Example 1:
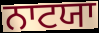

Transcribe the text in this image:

ਨਾਟਯਾ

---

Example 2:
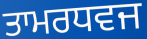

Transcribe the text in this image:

ਤਾਮਰਧਵਜ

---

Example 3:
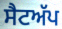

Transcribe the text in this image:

ਸੈਟਅੱਪ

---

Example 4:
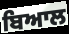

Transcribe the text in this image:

ਬਿਆਲ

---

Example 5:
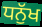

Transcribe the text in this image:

ਧਨੁੱਖ